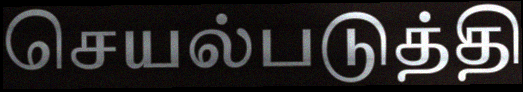
செயல்படுத்தி